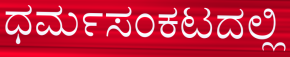
ಧರ್ಮಸಂಕಟದಲ್ಲಿ